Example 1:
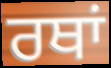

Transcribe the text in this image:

ਰਥਾਂ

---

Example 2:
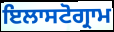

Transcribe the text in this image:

ਇਲਾਸਟੋਗ੍ਰਾਮ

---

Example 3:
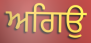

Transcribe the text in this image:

ਅਗਿਉ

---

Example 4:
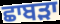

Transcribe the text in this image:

ਛਾਬੜਾ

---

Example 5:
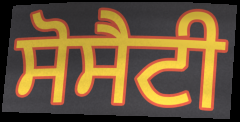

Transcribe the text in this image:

ਸੋਸੈਟੀ